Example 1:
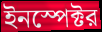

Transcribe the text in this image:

ইনস্পেক্টর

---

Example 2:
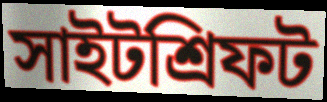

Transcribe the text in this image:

সাইটশ্রিফট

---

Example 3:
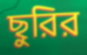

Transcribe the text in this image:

ছুরির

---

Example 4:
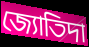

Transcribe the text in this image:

জ্যোতিদা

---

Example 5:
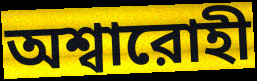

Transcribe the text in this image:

অশ্বারোহী